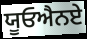
ਯੂਓਐਨਏ